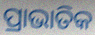
ପ୍ରାଭାତିକ